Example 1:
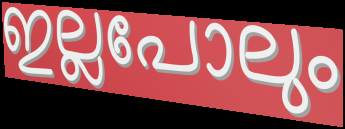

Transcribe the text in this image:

ഇല്ലപോലും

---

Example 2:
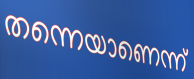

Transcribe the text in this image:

തന്നെയാണെന്ന്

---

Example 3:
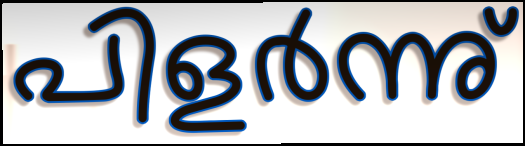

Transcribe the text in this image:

പിളർന്നു്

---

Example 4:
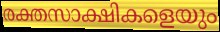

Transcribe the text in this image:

രക്തസാക്ഷികളെയും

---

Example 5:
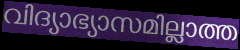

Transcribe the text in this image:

വിദ്യാഭ്യാസമില്ലാത്ത